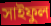
সাইফুল